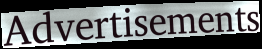
Advertisements